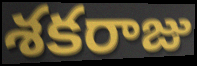
శకరాజు